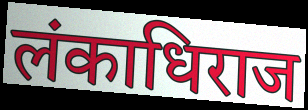
लंकाधिराज